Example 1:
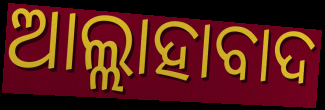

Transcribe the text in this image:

ଆଲ୍ଲାହାବାଦ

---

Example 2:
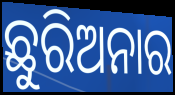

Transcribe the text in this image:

ଛୁରିଅନାର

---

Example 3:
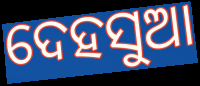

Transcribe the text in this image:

ଦେହସୁଆ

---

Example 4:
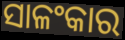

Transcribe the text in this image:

ସାଳଂକାର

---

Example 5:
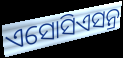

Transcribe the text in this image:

ଏସୋସିଏସନ୍ର